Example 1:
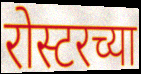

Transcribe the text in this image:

रोस्टरच्या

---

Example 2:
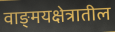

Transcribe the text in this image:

वाङ्मयक्षेत्रातील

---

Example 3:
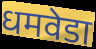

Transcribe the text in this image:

धमवेडा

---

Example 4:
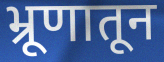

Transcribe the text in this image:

भ्रूणातून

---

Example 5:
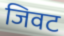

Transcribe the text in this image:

जिवट